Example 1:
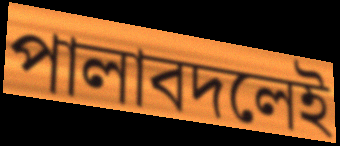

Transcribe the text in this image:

পালাবদলেই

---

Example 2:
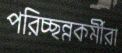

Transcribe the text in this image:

পরিচ্ছন্নকর্মীরা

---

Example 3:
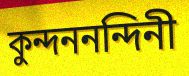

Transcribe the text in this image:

কুন্দননন্দিনী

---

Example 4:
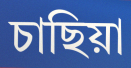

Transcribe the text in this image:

চাছিয়া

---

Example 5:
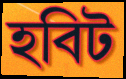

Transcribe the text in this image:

হবিট